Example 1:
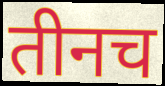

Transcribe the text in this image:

तीनच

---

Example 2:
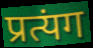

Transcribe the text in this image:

प्रत्यंग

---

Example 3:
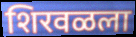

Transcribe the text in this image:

शिरवळला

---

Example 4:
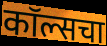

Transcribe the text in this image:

कॉल्सचा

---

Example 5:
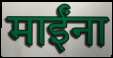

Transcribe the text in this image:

माईंना